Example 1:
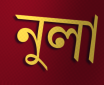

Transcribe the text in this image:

নুলা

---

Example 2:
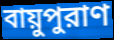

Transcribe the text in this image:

বায়ুপুরাণ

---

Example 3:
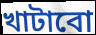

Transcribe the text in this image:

খাটাবো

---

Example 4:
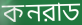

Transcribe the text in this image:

কনরাড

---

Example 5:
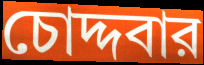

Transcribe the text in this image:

চোদ্দবার